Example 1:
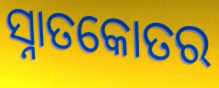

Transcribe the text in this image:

ସ୍ନାତକୋତର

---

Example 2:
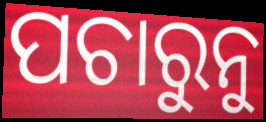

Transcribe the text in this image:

ପଚାରୁନୁ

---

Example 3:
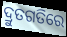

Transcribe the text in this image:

ଦ୍ରୁତଗତିରେ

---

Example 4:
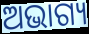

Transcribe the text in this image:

ଅଭାଗ୍ୟ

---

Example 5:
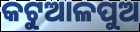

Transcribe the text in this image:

କଟୁଆଳପୁଅ